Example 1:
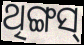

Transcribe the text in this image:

ଥିଙ୍ଗସ୍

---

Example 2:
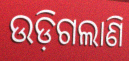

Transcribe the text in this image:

ଉଡ଼ିଗଲାଣି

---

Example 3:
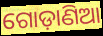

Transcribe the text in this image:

ଗୋଡ଼ାଣିଆ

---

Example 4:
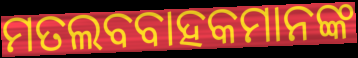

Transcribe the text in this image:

ମତଲବବାହକମାନଙ୍କ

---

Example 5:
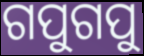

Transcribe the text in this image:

ଗପୁଗପୁ